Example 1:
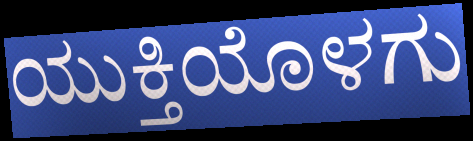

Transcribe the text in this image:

ಯುಕ್ತಿಯೊಳಗು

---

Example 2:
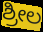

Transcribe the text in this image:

ಶ್ರೀಲ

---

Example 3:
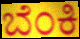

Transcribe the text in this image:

ಬೆಂಕಿ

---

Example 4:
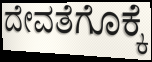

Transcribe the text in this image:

ದೇವತೆಗೊಕ್ಕೆ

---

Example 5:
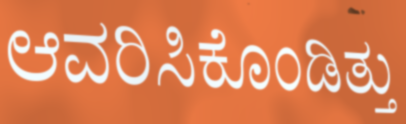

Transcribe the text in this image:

ಆವರಿಸಿಕೊಂಡಿತ್ತು